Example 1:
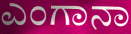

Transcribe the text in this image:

ಎಂಗಾನಾ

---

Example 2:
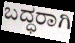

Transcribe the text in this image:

ಬದ್ಧರಾಗಿ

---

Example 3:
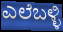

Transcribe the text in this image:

ಎಲೆಬಳ್ಳಿ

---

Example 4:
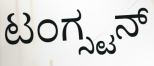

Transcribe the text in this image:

ಟಂಗ್ಸ್ಟನ್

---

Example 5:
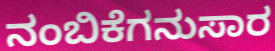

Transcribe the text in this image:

ನಂಬಿಕೆಗನುಸಾರ